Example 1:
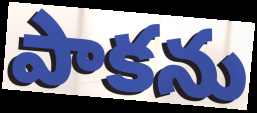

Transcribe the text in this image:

పాకను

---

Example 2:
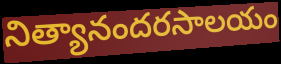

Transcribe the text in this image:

నిత్యానందరసాలయం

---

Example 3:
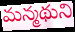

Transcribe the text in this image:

మన్మథుని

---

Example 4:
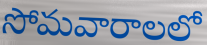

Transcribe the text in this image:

సోమవారాలలో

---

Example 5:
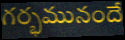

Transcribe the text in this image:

గర్భమునందే